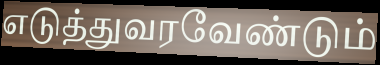
எடுத்துவரவேண்டும்